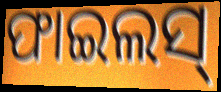
ଫାଇଲସ୍